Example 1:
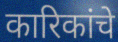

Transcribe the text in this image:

कारिकांचे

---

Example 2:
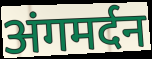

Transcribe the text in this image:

अंगमर्दन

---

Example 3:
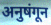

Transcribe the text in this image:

अनुषंगून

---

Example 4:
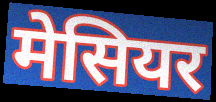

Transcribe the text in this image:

मेसियर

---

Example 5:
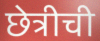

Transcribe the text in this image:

छेत्रीची